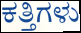
ಕತ್ತಿಗಳು